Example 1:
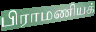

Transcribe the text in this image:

பிராமணியக்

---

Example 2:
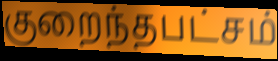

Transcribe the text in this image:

குறைந்தபட்சம்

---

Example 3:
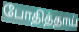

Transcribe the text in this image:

போதித்தாய்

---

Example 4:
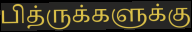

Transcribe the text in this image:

பித்ருக்களுக்கு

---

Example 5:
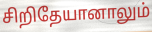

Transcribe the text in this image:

சிறிதேயானாலும்